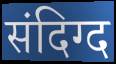
संदिग्द